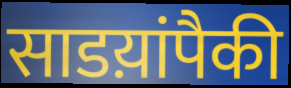
साडय़ांपैकी